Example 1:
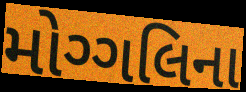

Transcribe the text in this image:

મોગ્ગલિના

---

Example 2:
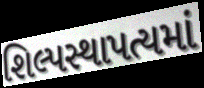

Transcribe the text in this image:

શિલ્પસ્થાપત્યમાં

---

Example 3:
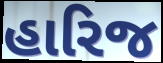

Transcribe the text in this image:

હારિજ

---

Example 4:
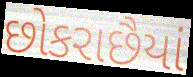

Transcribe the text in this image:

છોકરાછૈયાં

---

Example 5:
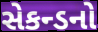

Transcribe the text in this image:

સેકન્ડનો